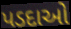
પડદાઓ